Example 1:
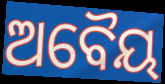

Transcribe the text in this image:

ଅବୈୟ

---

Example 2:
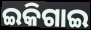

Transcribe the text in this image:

ଇକିଗାଇ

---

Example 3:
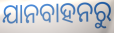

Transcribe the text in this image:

ଯାନବାହନରୁ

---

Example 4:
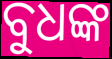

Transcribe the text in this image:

ବୁଧଙ୍କ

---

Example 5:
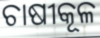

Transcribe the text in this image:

ଚାଷୀକୂଳ